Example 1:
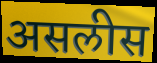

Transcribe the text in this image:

असलीस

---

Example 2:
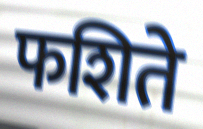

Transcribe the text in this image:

फशिते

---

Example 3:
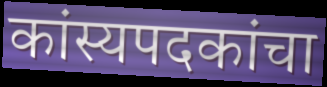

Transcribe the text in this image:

कांस्यपदकांचा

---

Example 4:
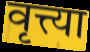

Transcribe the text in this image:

वृत्त्या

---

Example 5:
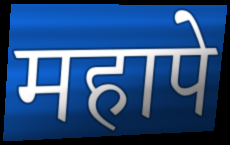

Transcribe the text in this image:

महापे